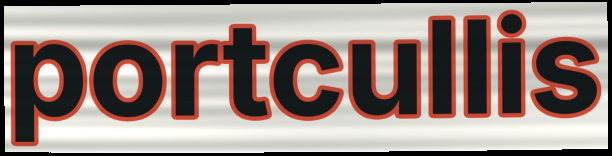
portcullis